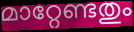
മാറ്റേണ്ടതും